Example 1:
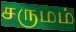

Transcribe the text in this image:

சருமம்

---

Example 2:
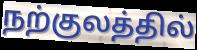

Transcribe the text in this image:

நற்குலத்தில்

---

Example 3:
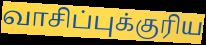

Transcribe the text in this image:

வாசிப்புக்குரிய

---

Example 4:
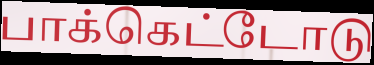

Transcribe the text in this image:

பாக்கெட்டோடு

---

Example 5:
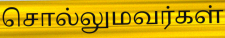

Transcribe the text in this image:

சொல்லுமவர்கள்